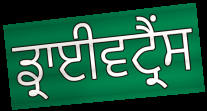
ਡ੍ਰਾਈਵਟ੍ਰੈਂਸ